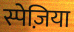
स्पेज़िया